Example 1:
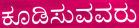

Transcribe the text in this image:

ಕೂಡಿಸುವವರು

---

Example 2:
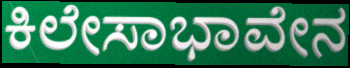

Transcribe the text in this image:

ಕಿಲೇಸಾಭಾವೇನ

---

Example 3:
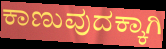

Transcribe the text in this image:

ಕಾಣುವುದಕ್ಕಾಗಿ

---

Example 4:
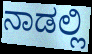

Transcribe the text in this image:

ನಾಡಲ್ಲಿ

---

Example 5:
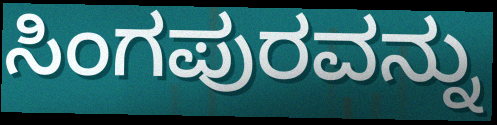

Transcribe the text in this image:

ಸಿಂಗಪುರವನ್ನು